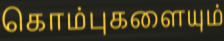
கொம்புகளையும்